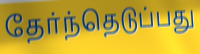
தேர்ந்தெடுப்பது